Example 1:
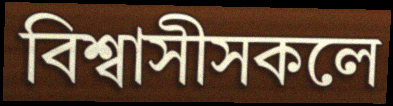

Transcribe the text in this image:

বিশ্বাসীসকলে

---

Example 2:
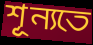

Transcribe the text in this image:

শূন্যতে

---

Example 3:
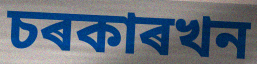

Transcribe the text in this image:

চৰকাৰখন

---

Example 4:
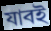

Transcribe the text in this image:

যাবই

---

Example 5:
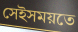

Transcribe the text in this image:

সেইসময়তে